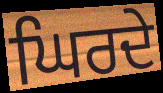
ਘਿਰਦੇ